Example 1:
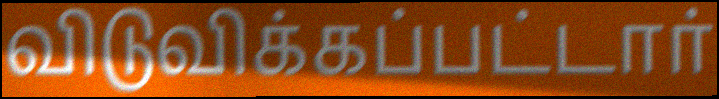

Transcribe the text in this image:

விடுவிக்கப்பட்டார்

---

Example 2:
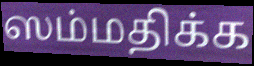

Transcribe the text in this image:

ஸம்மதிக்க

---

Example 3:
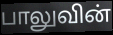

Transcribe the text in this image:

பாலுவின்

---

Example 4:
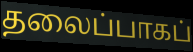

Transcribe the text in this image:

தலைப்பாகப்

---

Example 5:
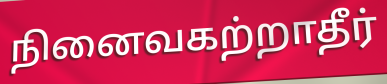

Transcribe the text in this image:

நினைவகற்றாதீர்